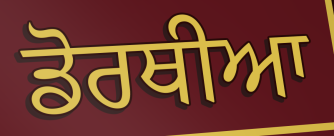
ਡੋਰਥੀਆ